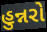
હુન્નરો